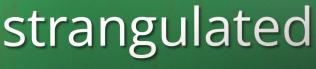
strangulated